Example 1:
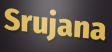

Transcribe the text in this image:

Srujana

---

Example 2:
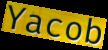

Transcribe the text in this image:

Yacob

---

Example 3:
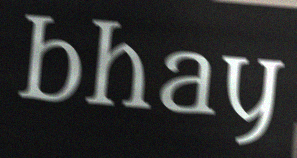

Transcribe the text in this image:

bhay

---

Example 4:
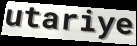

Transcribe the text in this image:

utariye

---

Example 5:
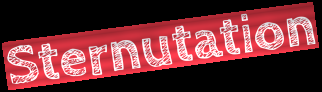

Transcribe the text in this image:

Sternutation